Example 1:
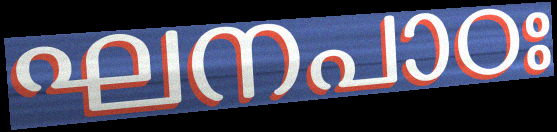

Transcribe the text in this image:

ഘനപാഠഃ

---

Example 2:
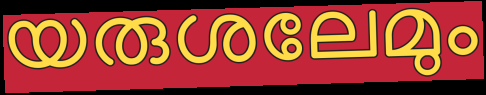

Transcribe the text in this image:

യരുശലേമും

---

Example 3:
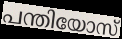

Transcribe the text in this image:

പന്തിയോസ്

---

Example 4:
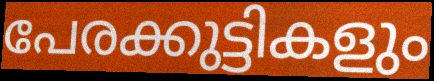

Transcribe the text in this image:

പേരക്കുട്ടികളും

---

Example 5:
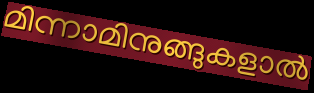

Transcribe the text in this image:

മിന്നാമിനുങ്ങുകളാൽ